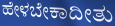
ಹೇಳಬೇಕಾದೀತು